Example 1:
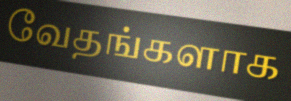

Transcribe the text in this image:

வேதங்களாக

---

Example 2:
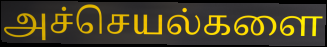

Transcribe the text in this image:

அச்செயல்களை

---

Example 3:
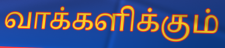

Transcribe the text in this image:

வாக்களிக்கும்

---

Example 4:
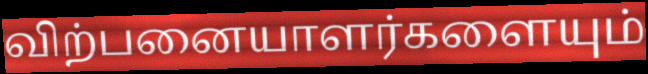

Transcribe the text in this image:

விற்பனையாளர்களையும்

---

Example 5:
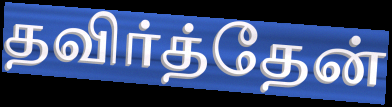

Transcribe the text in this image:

தவிர்த்தேன்